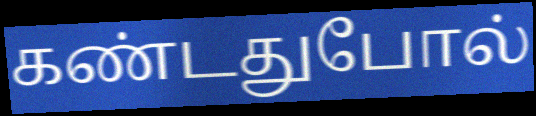
கண்டதுபோல்